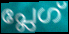
പ്ലേഗ്